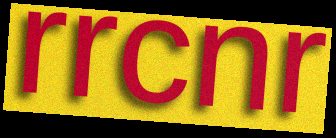
rrcnr